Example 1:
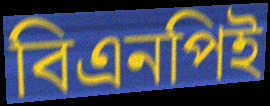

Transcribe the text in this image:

বিএনপিই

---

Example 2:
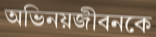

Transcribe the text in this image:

অভিনয়জীবনকে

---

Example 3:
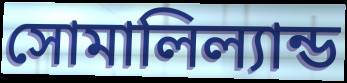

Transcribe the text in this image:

সোমালিল্যান্ড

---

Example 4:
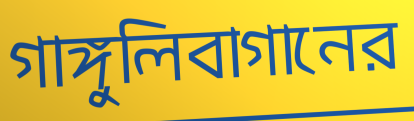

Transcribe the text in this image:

গাঙ্গুলিবাগানের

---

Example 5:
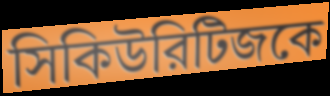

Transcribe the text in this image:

সিকিউরিটিজকে